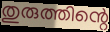
തുരുത്തിന്റെ